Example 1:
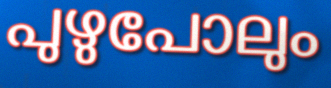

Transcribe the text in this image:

പുഴുപോലും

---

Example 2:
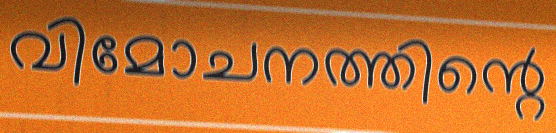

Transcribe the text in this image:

വിമോചനത്തിന്റെ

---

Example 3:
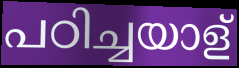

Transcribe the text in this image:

പഠിച്ചയാള്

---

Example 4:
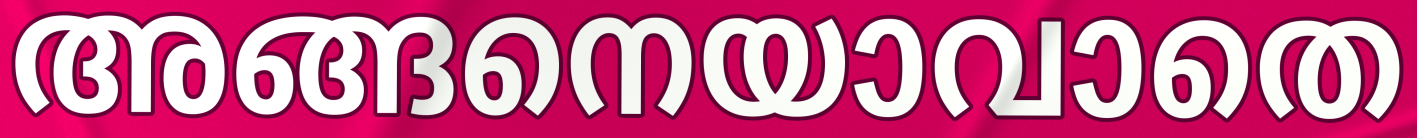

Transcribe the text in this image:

അങ്ങനെയാവാതെ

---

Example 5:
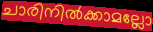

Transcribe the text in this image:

ചാരിനിൽക്കാമല്ലോ